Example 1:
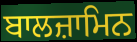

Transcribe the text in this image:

ਬਾਲਜ਼ਾਮਿਨ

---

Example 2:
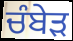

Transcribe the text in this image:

ਚੰਬੇੜ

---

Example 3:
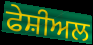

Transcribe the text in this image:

ਫੇਸ਼ੀਅਲ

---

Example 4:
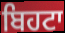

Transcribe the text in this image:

ਬਿਹਟਾ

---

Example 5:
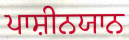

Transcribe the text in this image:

ਪਾਸ਼ੀਨਯਾਨ